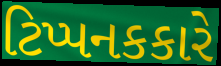
ટિપ્પનકકારે